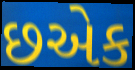
છએક